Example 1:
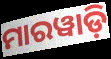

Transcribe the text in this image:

ମାରୱାଡ଼ି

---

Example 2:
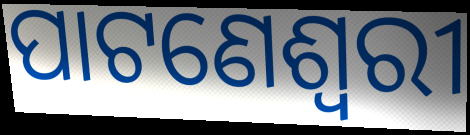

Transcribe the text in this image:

ପାଟଣେଶ୍ୱରୀ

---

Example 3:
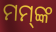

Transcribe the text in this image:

ମମ୍‌ଙ୍କ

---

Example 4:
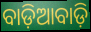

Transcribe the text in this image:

ବାଡ଼ିଆବାଡ଼ି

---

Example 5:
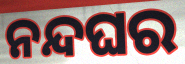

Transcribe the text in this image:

ନନ୍ଦଘର